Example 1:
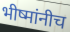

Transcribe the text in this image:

भीष्मांनीच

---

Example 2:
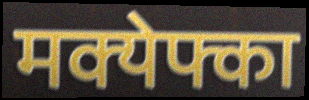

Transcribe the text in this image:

मक्येफ्का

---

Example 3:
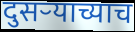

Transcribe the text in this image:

दुसऱ्याच्याच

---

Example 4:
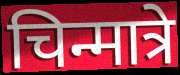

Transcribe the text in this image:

चिन्मात्रे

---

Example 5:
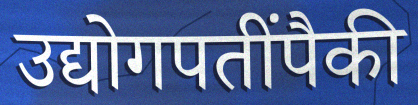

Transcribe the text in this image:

उद्योगपतींपैकी